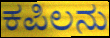
ಕಪಿಲನು